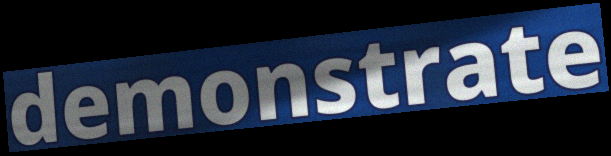
demonstrate